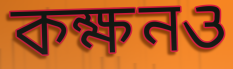
কক্ষনও